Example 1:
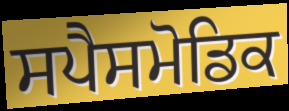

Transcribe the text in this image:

ਸਪੈਸਮੋਡਿਕ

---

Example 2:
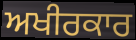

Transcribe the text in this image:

ਅਖੀਰਕਾਰ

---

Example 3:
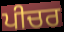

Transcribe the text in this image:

ਪੀਚਰ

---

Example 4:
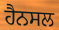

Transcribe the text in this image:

ਹੈਨਸਲ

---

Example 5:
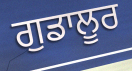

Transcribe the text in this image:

ਗੁਡਾਲੂਰ